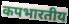
कपभारतीय